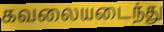
கவலையடைந்து